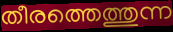
തീരത്തെത്തുന്ന